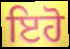
ਇਹੋ